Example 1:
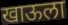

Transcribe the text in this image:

खाऊला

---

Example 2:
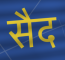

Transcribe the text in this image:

सैद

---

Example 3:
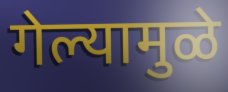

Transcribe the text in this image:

गेल्यामुळे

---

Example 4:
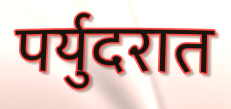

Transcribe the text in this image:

पर्युदरात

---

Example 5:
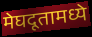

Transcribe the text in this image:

मेघदूतामध्ये